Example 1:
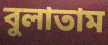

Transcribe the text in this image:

বুলাতাম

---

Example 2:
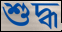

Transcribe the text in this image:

শুদ্ধ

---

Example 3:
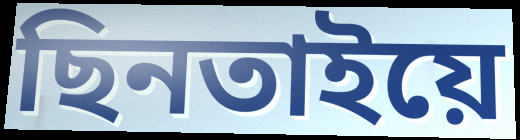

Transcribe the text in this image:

ছিনতাইয়ে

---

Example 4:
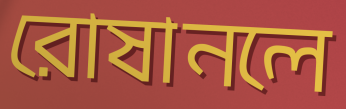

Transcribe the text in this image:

রোষানলে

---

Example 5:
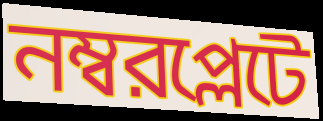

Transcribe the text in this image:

নম্বরপ্লেটে